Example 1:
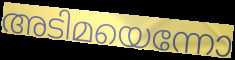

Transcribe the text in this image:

അടിമയെന്നോ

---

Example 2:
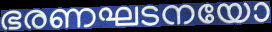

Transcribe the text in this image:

ഭരണഘടനയോ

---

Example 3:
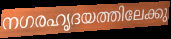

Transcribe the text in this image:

നഗരഹൃദയത്തിലേക്കു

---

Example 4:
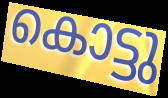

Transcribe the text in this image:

കൊട്ടു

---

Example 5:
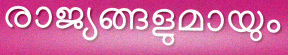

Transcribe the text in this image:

രാജ്യങ്ങളുമായും